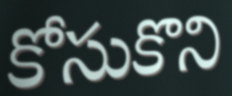
కోసుకొని